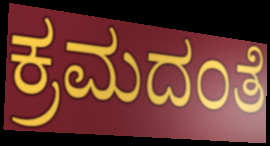
ಕ್ರಮದಂತೆ